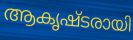
ആകൃഷ്ടരായി